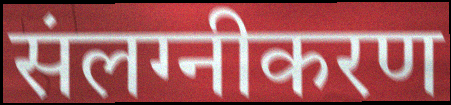
संलग्‍नीकरण